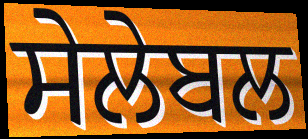
ਸੇਲੇਬਲ